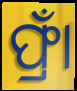
ଫ୍ରାଁ